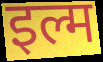
इल्म